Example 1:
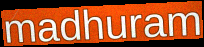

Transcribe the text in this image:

madhuram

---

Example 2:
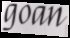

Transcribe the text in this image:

goan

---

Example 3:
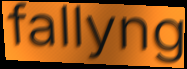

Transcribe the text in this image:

fallyng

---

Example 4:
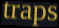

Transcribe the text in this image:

traps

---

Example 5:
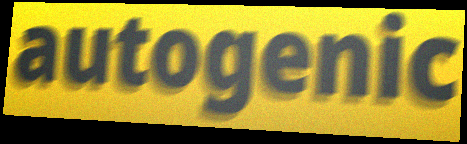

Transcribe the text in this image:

autogenic